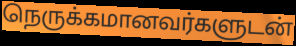
நெருக்கமானவர்களுடன்